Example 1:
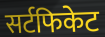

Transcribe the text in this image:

सर्टफिकेट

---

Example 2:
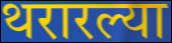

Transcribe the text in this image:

थरारल्या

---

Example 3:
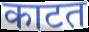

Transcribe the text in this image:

काटत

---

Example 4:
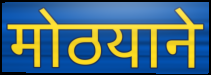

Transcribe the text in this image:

मोठयाने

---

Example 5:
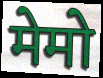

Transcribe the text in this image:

मेमो